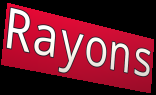
Rayons